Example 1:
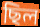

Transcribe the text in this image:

ছিল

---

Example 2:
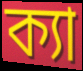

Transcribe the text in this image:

ক্যা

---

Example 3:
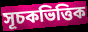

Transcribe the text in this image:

সূচকভিত্তিক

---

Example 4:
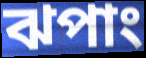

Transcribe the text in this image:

ঝপাং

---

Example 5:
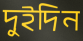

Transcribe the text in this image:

দুইদিন